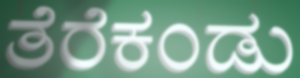
ತೆರೆಕಂಡು